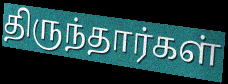
திருந்தார்கள்